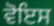
ਵੋਇਸ